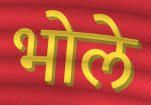
भोले